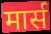
मार्स